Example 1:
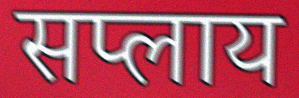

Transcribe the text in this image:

सप्लाय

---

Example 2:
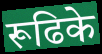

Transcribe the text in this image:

रूढिके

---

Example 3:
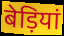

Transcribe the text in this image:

बेड़ियां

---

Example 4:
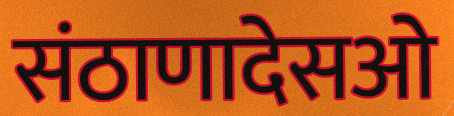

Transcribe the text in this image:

संठाणादेसओ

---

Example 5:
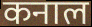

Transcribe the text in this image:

कनाल